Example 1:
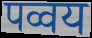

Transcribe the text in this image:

पव्वय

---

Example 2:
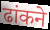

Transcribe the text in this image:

ढांकने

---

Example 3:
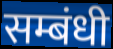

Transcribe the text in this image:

सम्बंधी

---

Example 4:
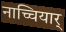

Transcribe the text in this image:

नाच्चियार्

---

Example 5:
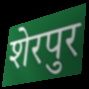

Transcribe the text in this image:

शेरपुर